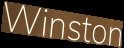
Winston